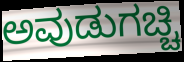
ಅವುಡುಗಚ್ಚಿ